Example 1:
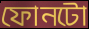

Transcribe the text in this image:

ফোনটো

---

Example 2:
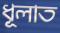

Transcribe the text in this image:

ধূলাত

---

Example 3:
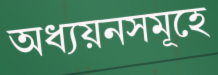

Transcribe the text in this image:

অধ্যয়নসমূহে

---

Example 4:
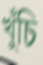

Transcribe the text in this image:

খুঁচি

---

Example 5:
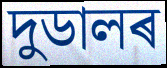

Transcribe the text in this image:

দুডালৰ